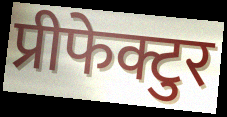
प्रीफेक्टुर